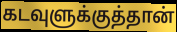
கடவுளுக்குத்தான்